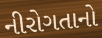
નીરોગતાનો